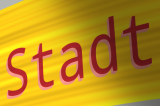
Stadt